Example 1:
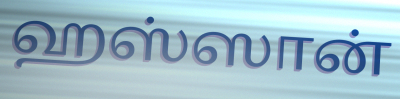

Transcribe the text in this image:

ஹஸ்ஸான்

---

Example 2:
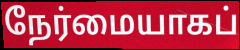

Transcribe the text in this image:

நேர்மையாகப்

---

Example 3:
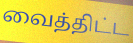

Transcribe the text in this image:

வைத்திட்ட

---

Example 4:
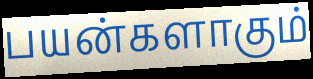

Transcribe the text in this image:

பயன்களாகும்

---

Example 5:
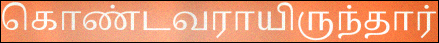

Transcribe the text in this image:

கொண்டவராயிருந்தார்